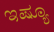
ಇಷ್ಯೂ